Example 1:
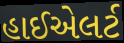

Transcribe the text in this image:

હાઈએલર્ટ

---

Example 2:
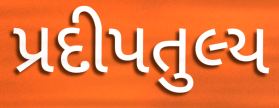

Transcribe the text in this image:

પ્રદીપતુલ્ય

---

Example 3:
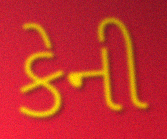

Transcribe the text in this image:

કેની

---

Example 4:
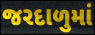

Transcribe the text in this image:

જરદાળુમાં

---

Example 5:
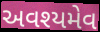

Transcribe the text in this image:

અવશ્યમેવ